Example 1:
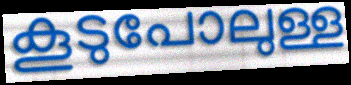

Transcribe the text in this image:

കൂടുപോലുള്ള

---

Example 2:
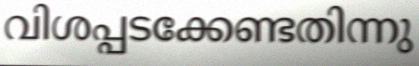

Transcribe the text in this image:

വിശപ്പടക്കേണ്ടതിന്നു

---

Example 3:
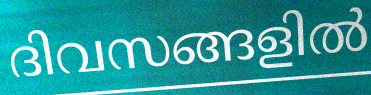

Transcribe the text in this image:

ദിവസങ്ങളിൽ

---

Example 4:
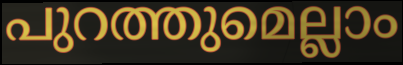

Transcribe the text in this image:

പുറത്തുമെല്ലാം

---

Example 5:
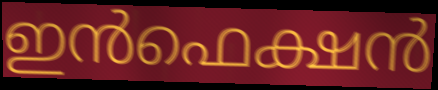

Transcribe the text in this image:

ഇൻഫെക്ഷൻ